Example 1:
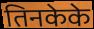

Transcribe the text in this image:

तिनकेके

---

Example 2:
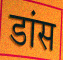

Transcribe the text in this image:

डांस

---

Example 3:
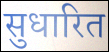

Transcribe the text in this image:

सुधारित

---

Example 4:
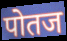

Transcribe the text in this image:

पोतज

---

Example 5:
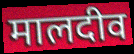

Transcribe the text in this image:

मालदीव